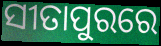
ସୀତାପୁରରେ